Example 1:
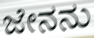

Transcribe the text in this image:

ಜೇನನು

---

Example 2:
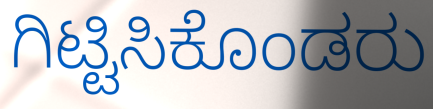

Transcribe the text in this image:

ಗಿಟ್ಟಿಸಿಕೊಂಡರು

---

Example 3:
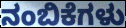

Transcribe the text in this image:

ನಂಬಿಕೆಗಳು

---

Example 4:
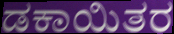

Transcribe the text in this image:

ಡಕಾಯಿತರ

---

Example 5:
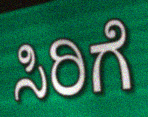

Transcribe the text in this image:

ಸಿರಿಗೆ